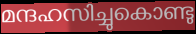
മന്ദഹസിച്ചുകൊണ്ടു